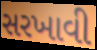
સરખાવી